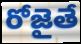
రోజైతే